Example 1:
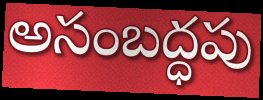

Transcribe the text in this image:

అసంబద్ధపు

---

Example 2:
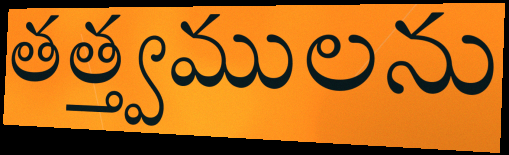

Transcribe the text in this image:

తత్త్వములను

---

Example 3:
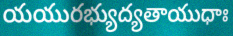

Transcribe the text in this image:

యయురభ్యుద్యతాయుధాః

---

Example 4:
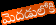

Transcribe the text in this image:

మెదడులోకి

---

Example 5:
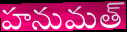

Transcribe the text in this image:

హనుమత్